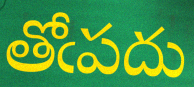
తోఁపదు